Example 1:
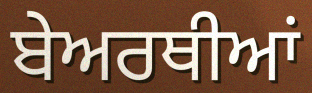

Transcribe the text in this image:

ਬੇਅਰਥੀਆਂ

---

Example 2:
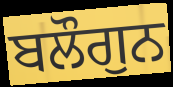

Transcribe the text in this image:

ਬਲੌਗੁਨ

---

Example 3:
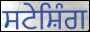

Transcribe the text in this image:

ਸਟੇਸ਼ਿੰਗ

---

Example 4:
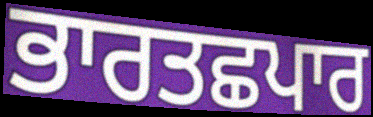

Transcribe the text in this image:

ਭਾਰਤਛਪਾਰ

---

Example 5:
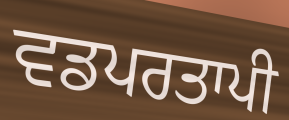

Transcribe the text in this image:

ਵਡਪਰਤਾਪੀ